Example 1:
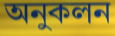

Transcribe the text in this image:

অনুকলন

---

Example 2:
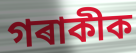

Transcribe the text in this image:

গৰাকীক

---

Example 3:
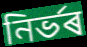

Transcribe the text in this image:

নিৰ্ভৰ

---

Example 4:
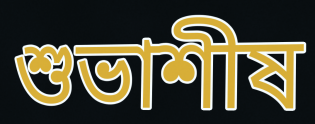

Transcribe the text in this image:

শুভাশীষ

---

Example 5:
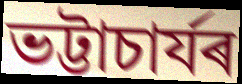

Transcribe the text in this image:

ভট্টাচাৰ্যৰ